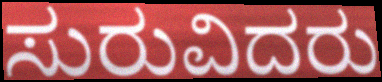
ಸುರುವಿದರು